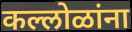
कल्लोळांना